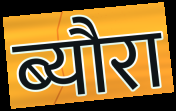
ब्‍यौरा